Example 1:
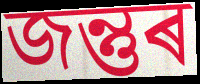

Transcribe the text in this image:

জন্তুৰ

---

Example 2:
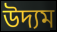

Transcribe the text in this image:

উদ্যম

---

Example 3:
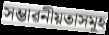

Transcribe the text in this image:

সম্ভাৱনীয়তাসমূহ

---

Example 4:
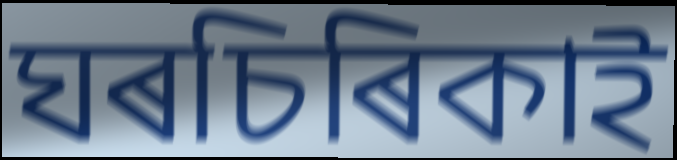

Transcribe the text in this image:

ঘৰচিৰিকাই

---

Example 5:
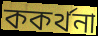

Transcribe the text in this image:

ককৰ্থনা